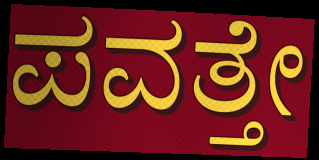
ಪವತ್ತೇ